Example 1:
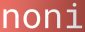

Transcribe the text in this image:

noni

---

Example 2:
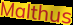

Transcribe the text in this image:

Malthus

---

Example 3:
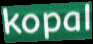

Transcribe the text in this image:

kopal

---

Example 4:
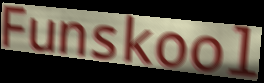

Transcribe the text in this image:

Funskool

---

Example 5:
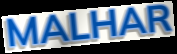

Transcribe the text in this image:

MALHAR